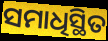
ସମାଧିସ୍ଥିତ